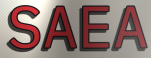
SAEA